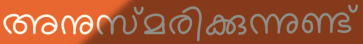
അനുസ്മരിക്കുന്നുണ്ട്